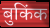
बुकिंक